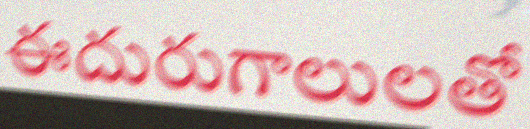
ఈదురుగాలులతో